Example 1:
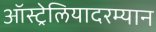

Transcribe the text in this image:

ऑस्ट्रेलियादरम्यान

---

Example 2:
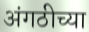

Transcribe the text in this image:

अंगठीच्या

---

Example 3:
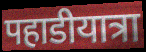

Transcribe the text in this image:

पहाडीयात्रा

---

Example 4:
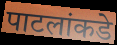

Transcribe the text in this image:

पाटलांकडे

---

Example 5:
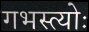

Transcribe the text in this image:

गभस्त्योः